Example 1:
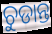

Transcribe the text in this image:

ଚୁଡାନ୍ତ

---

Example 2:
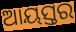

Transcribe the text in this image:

ଆୟସ୍ତର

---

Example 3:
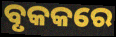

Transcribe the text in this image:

ବୃକକରେ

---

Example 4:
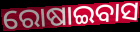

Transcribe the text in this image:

ରୋଷାଇବାସ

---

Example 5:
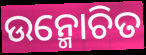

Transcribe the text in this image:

ଉନ୍ମୋଚିତ